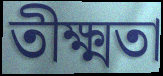
তীক্ষ্মতা